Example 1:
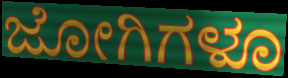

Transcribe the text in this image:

ಜೋಗಿಗಳೂ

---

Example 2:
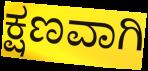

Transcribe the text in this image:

ಕ್ಷಣವಾಗಿ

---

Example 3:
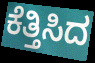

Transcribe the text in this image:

ಕೆತ್ತಿಸಿದ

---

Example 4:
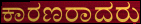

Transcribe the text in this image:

ಕಾರಣರಾದರು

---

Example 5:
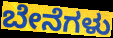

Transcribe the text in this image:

ಬೇನೆಗಳು